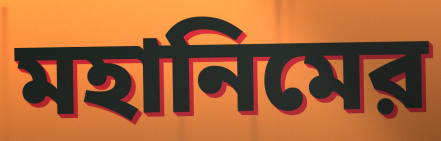
মহানিমের